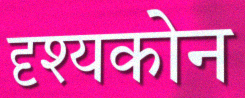
दृश्‍यकोन